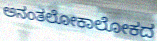
ಅನಂತಲೋಕಾಲೋಕದ